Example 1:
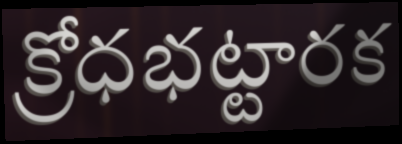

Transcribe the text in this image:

క్రోధభట్టారక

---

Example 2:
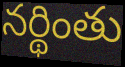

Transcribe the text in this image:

నర్థింతు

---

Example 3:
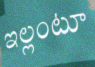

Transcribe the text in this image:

ఇల్లంటూ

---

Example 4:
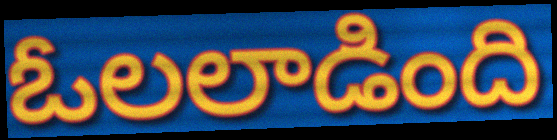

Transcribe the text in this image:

ఓలలాడింది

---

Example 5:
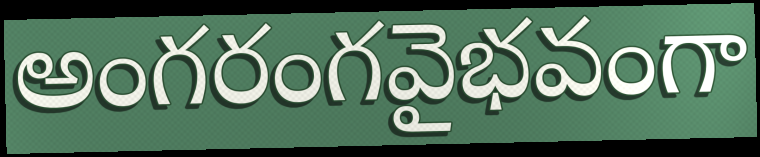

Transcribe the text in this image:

అంగరంగవైభవంగా